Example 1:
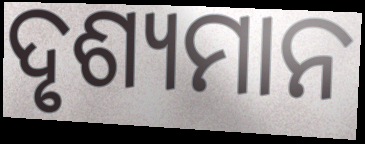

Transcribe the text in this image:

ଦୃଶ୍ୟମାନ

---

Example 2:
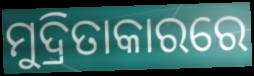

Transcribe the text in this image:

ମୁଦ୍ରିତାକାରରେ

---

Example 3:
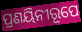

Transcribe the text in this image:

ପ୍ରଣୟିନୀରୂପେ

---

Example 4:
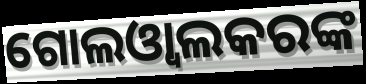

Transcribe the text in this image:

ଗୋଲଓ୍ଵାଲକରଙ୍କ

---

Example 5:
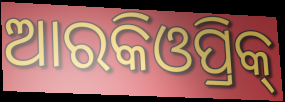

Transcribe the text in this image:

ଆରକିଓପ୍ରିକ୍